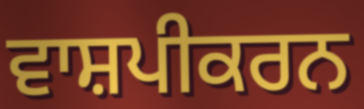
ਵਾਸ਼ਪੀਕਰਨ